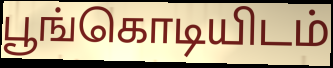
பூங்கொடியிடம்